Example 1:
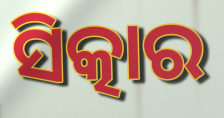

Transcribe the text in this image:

ସିତ୍କାର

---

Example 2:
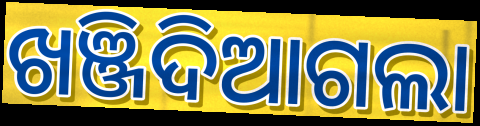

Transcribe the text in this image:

ଖଞ୍ଜିଦିଆଗଲା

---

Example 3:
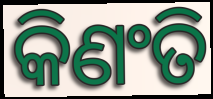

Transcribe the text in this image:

କିଣଂତି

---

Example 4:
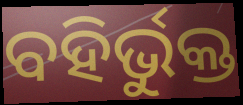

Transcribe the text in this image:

ବହିର୍ଭୁକ୍ତ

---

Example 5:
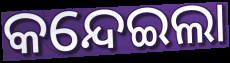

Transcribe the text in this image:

କନ୍ଦେଇଲା